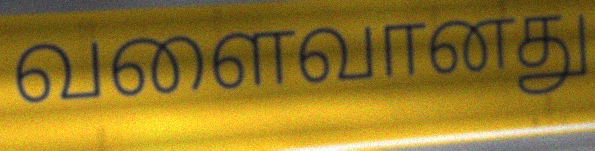
வளைவானது